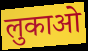
लुकाओ